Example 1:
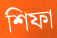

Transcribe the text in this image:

শিফা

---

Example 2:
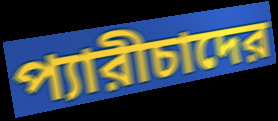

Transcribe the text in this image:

প্যারীচাদের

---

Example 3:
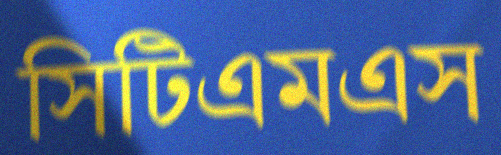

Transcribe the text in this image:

সিটিএমএস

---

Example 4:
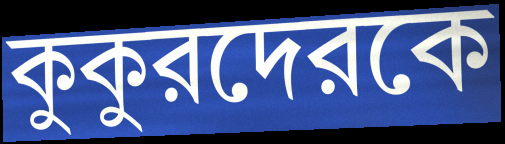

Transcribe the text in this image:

কুকুরদেরকে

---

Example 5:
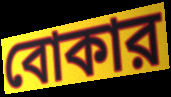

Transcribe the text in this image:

বোকার